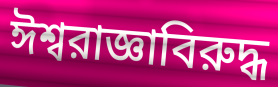
ঈশ্বরাজ্ঞাবিরুদ্ধ